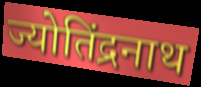
ज्योतिंद्रनाथ